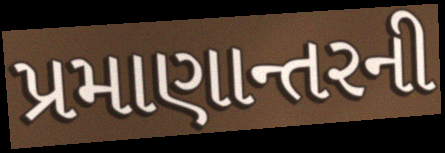
પ્રમાણાન્તરની